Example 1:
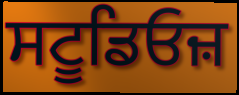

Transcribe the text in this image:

ਸਟੂਡਿਓਜ਼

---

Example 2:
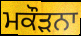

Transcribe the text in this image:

ਮਕੌੜਨਾ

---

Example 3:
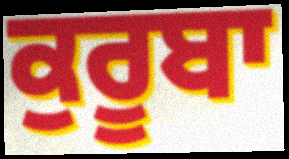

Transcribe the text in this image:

ਕੁਰੂਬਾ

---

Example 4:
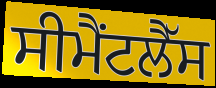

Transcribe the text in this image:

ਸੀਮੈਂਟਲੈੱਸ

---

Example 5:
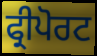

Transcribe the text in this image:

ਫ੍ਰੀਪੋਰਟ